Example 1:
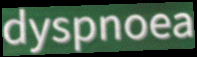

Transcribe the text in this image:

dyspnoea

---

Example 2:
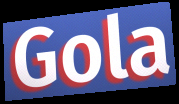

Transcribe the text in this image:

Gola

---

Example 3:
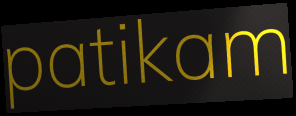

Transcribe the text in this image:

patikam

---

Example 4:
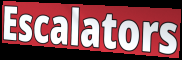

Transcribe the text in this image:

Escalators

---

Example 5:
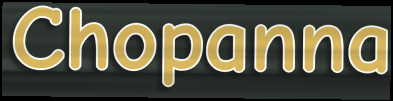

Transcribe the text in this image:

Chopanna